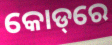
କୋଡ୍‌ରେ